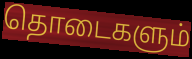
தொடைகளும்